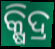
କ୍ଷିଦ୍ର